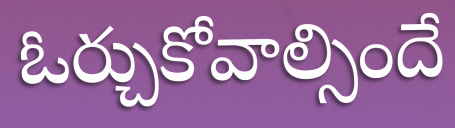
ఓర్చుకోవాల్సిందే